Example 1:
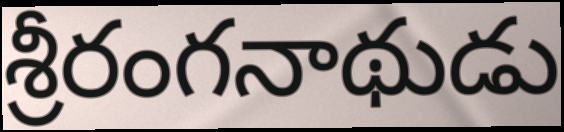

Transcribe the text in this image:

శ్రీరంగనాథుడు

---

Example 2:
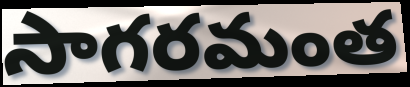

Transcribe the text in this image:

సాగరమంత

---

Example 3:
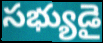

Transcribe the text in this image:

సభ్యుడై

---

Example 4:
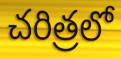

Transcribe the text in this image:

చరిత్రలో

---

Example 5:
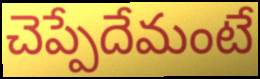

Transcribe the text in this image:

చెప్పేదేమంటే